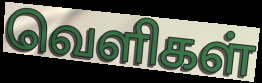
வெளிகள்